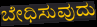
ಬೇಧಿಸುವುದು